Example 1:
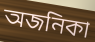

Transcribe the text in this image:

অজনিকা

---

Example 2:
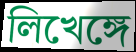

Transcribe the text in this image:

লিখেঙ্গে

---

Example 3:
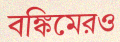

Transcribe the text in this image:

বঙ্কিমেরও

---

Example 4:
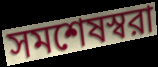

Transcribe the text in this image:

সমশেষস্বরা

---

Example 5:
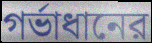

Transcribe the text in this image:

গর্ভাধানের